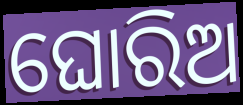
ଘୋରିଅ